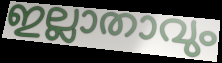
ഇല്ലാതാവും